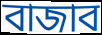
বাজাব